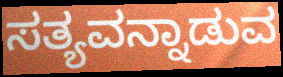
ಸತ್ಯವನ್ನಾಡುವ